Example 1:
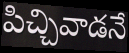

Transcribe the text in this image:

పిచ్చివాడనే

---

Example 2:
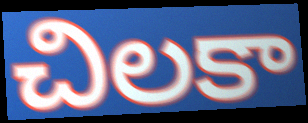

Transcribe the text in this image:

చిలకా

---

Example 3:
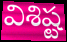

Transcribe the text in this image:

విశిష్ట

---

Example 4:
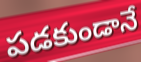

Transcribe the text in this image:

పడకుండానే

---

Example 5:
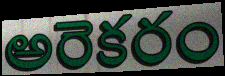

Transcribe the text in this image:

అరెకరం